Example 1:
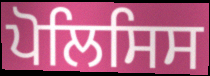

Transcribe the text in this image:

ਪੋਲਿਸਿਸ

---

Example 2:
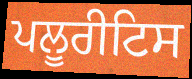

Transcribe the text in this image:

ਪਲੂਰੀਟਿਸ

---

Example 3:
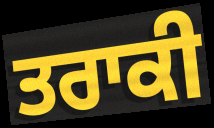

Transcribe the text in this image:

ਤਰਾਕੀ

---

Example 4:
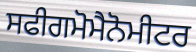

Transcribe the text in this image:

ਸਫੀਗਮੋਮੈਨੋਮੀਟਰ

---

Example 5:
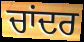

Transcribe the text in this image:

ਚਾਂਦਰ